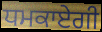
ਧਮਕਾਏਗੀ